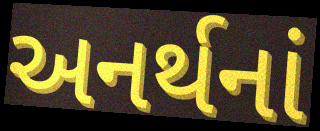
અનર્થનાં